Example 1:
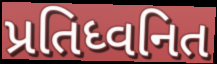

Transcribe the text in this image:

પ્રતિધ્વનિત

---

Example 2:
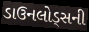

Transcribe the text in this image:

ડાઉનલોડ્સની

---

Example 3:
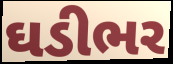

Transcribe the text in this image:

ઘડીભર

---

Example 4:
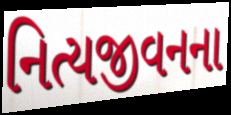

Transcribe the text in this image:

નિત્યજીવનના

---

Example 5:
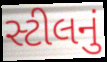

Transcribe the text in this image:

સ્ટીલનું